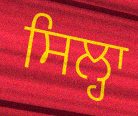
ਸਿਲ੍ਹਾ